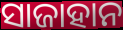
ସାଜାହାନ